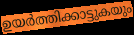
ഉയർത്തിക്കാട്ടുകയും